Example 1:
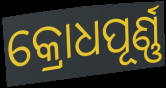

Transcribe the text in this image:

କ୍ରୋଧପୂର୍ଣ୍ଣ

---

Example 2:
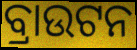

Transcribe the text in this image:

ବ୍ରାଉଟନ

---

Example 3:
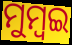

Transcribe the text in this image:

ମୁମ୍ୱଇ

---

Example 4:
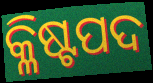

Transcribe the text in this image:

କ୍ଳିଷ୍ଟପଦ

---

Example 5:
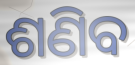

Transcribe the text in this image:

ଶଣିବ